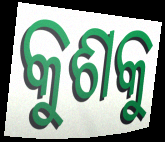
କୁଶକୁ